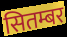
सितम्‍बर